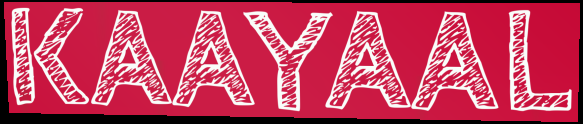
KAAYAAL